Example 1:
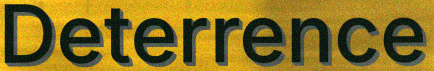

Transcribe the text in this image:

Deterrence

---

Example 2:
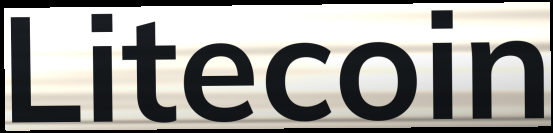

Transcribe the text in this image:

Litecoin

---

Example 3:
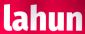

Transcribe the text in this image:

lahun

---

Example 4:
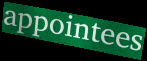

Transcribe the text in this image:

appointees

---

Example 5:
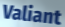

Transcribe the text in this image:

Valiant